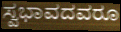
ಸ್ವಭಾವದವರೂ